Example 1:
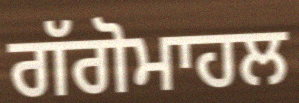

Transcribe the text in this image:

ਗੱਗੋਮਾਹਲ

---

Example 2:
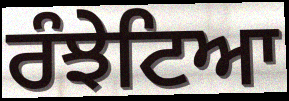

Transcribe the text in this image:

ਰੰਝੇਟਿਆ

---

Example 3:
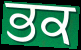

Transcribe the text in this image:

ਭਕ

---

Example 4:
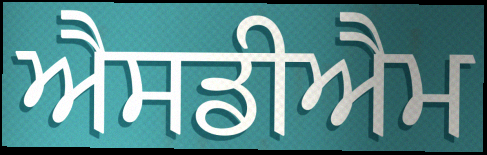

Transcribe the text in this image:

ਐਸਡੀਐਮ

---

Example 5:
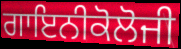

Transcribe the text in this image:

ਗਾਇਨੀਕੋਲੋਜੀ